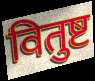
वितुष्ट